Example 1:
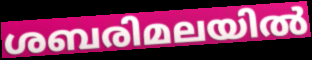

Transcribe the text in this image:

ശബരിമലയിൽ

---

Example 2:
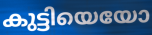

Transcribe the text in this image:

കുട്ടിയെയോ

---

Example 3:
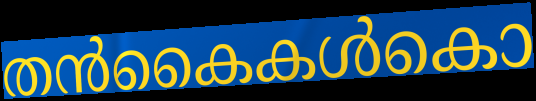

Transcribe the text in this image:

തൻകൈകൾകൊ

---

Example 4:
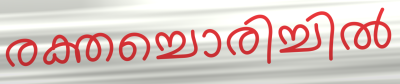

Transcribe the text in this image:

രക്തച്ചൊരിച്ചിൽ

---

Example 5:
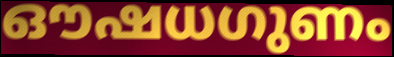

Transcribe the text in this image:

ഔഷധഗുണം